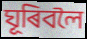
ঘূৰিবলৈ